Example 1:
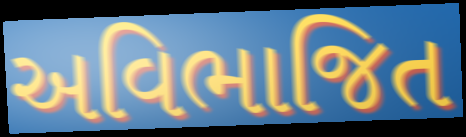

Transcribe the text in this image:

અવિભાજિત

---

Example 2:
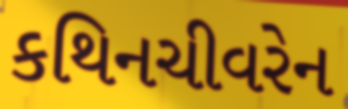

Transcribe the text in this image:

કથિનચીવરેન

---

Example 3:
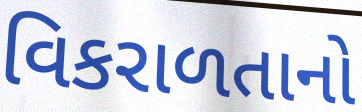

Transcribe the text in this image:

વિકરાળતાનો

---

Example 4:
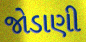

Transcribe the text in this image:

જોડાણી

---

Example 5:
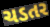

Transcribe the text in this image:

ચડતર